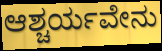
ಆಶ್ಚರ್ಯವೇನು